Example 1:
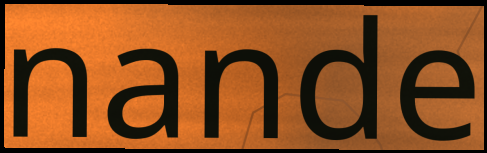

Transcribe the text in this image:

nande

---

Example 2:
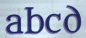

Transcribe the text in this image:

abcd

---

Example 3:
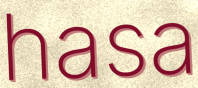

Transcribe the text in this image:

hasa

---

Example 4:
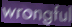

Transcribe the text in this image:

wrongful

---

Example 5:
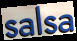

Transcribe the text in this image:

salsa